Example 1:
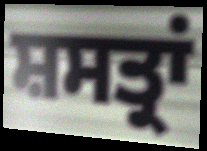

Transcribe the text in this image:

ਸ਼ਸਤ੍ਰਾਂ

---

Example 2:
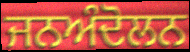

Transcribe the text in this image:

ਜਨਅੰਦੋਲਨ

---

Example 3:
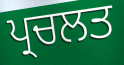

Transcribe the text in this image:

ਪ੍ਰਚਲਤ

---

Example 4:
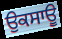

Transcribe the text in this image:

ਉਕਸਾਊ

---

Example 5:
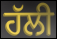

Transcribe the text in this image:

ਹੱਲੀ